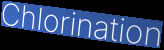
Chlorination